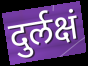
दुर्लक्षं